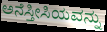
ಅನೆಸ್ತೀಸಿಯವನ್ನು